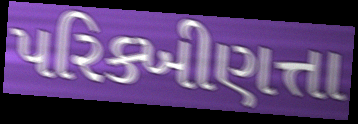
પરિક્ખીણત્તા